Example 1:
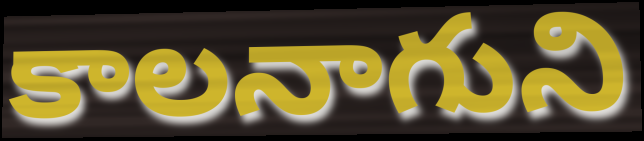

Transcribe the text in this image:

కాలనాగుని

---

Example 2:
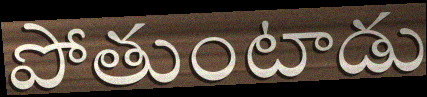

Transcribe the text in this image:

పోతుంటాడు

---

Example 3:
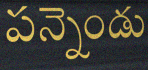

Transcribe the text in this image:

పన్నెండు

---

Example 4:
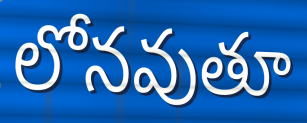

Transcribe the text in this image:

లోనవుతూ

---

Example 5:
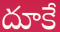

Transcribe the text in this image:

దూకే